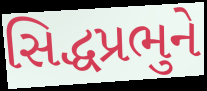
સિદ્ધપ્રભુને